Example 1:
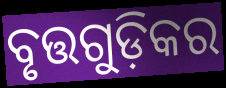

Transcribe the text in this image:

ବୃତ୍ତଗୁଡ଼ିକର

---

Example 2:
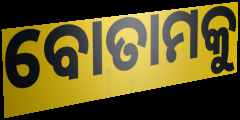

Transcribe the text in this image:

ବୋତାମକୁ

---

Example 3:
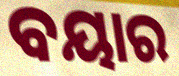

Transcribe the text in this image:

ବୟାର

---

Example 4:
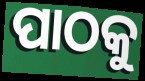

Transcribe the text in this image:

ପାଠକୁ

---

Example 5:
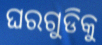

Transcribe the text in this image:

ଘରଗୁଡିକୁ